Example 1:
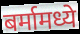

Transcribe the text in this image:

बर्मामध्ये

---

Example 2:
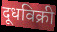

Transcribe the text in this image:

दूधविक्री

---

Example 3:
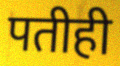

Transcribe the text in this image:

पतीही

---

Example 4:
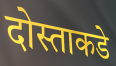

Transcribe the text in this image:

दोस्ताकडे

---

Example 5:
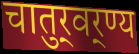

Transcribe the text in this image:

चातुर्वर्ण्य